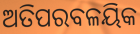
ଅତିପରବଳୟିକ